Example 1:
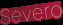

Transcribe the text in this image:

Severo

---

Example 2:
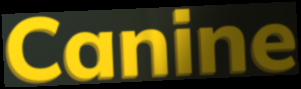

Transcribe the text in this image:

Canine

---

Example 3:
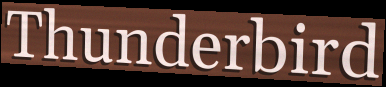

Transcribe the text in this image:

Thunderbird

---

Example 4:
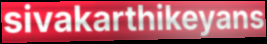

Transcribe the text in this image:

sivakarthikeyans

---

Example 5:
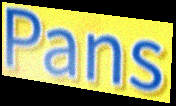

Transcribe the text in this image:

Pans